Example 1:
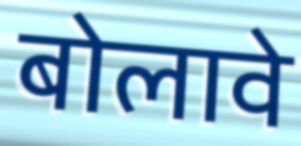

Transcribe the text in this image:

बोलावे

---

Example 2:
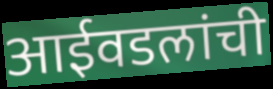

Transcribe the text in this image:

आईवडलांची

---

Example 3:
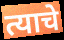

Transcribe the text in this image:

त्याचे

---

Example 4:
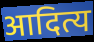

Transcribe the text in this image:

आदित्य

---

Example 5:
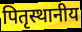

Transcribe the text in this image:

पितृस्थानीय